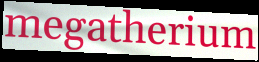
megatherium